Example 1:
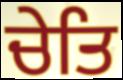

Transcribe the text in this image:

ਚੇਤਿ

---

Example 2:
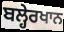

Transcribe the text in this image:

ਬਲ੍ਹੇਰਖਾਨ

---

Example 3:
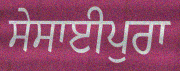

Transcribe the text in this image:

ਸੇਸਾਈਪੁਰਾ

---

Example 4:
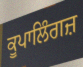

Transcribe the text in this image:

ਕੂਪਾਲਿੰਗਜ਼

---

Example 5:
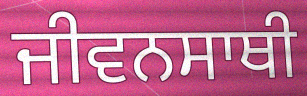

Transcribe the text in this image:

ਜੀਵਨਸਾਥੀ